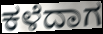
ಕಳೆದಾಗ